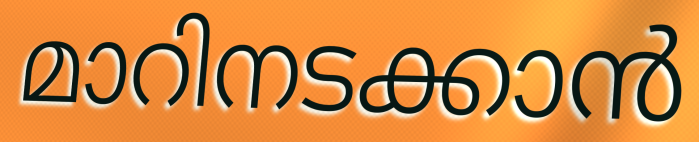
മാറിനടക്കാൻ